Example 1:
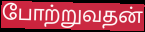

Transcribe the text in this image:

போற்றுவதன்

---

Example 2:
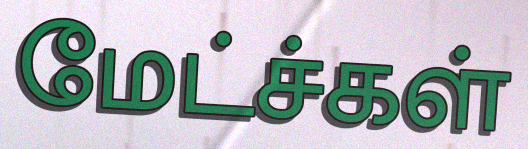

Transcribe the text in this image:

மேட்ச்கள்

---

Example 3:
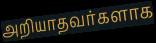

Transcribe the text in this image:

அறியாதவர்களாக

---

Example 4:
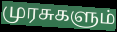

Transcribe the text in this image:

முரசுகளும்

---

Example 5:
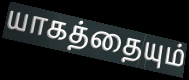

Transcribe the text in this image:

யாகத்தையும்